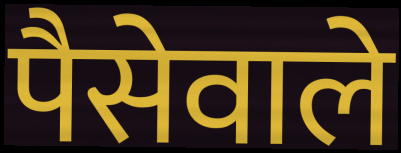
पैसेवाले